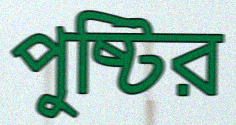
পুষ্টির